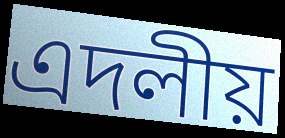
এদলীয়